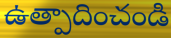
ఉత్పాదించండి